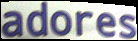
adores